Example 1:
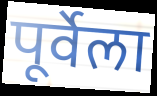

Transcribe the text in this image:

पूर्वेला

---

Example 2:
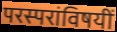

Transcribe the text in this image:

परस्परांविषयीं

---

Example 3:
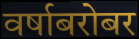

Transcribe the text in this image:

वर्षाबरोबर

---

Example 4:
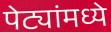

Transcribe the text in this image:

पेट्यांमध्ये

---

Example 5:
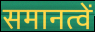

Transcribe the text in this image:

समानत्वें